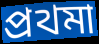
প্রথমা